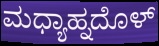
ಮಧ್ಯಾಹ್ನದೊಳ್